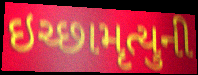
ઇચ્છામૃત્યુની